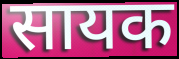
सायक